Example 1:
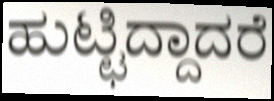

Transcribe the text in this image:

ಹುಟ್ಟಿದ್ದಾದರೆ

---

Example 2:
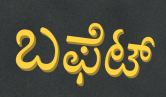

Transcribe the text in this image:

ಬಫೆಟ್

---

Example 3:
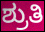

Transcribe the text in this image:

ಶ್ರುತಿ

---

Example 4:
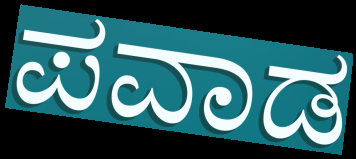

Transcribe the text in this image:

ಪವಾಡ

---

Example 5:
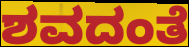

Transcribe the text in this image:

ಶವದಂತೆ